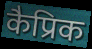
कैप्रिक